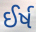
ઈર્ષ